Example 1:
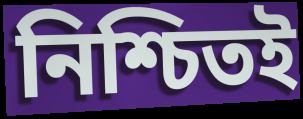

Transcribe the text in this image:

নিশ্চিতই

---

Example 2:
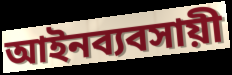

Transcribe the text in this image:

আইনব্যবসায়ী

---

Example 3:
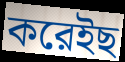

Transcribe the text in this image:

করেইছ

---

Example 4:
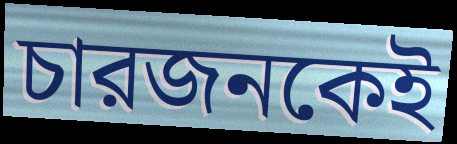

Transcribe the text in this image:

চারজনকেই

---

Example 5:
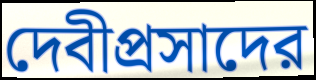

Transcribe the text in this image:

দেবীপ্রসাদের